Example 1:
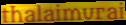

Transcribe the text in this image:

thalaimurai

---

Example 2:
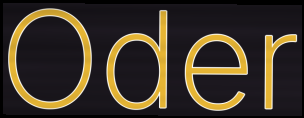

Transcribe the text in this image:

Oder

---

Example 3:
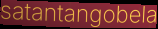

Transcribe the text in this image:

satantangobela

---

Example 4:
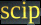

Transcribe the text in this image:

scip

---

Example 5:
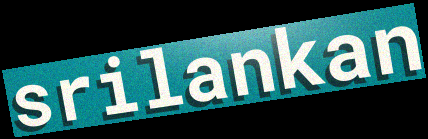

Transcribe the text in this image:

srilankan